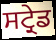
ਸਟ੍ਰੇਡ